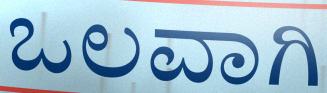
ಒಲವಾಗಿ